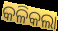
କଳିକଲା